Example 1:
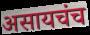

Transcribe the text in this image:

असायचंच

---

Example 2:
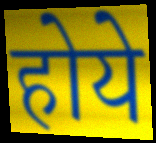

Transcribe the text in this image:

होये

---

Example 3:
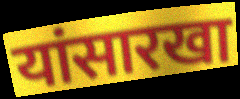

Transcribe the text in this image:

यांसारखा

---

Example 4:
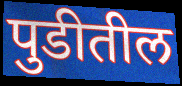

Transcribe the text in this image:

पुडीतील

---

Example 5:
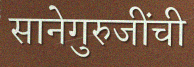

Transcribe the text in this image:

सानेगुरुजींची